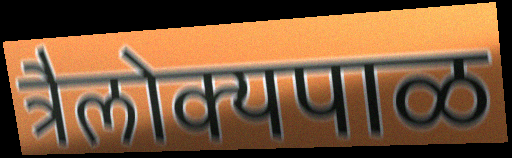
त्रैलोक्यपाळ